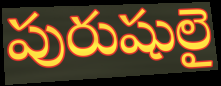
పురుషులై